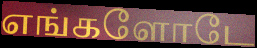
எங்களோடே